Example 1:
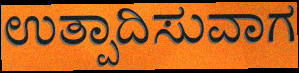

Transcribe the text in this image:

ಉತ್ಪಾದಿಸುವಾಗ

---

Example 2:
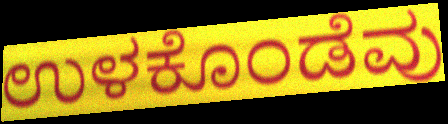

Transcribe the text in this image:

ಉಳಕೊಂಡೆವು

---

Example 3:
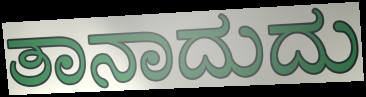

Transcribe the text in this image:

ತಾನಾದುದು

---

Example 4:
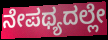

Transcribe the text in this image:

ನೇಪಥ್ಯದಲ್ಲೇ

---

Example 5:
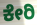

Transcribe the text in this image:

ಕೇರಿ